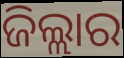
ଜିଲ୍ଲାର